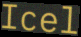
Icel